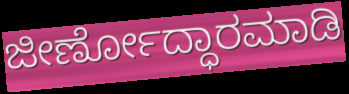
ಜೀರ್ಣೋದ್ಧಾರಮಾಡಿ